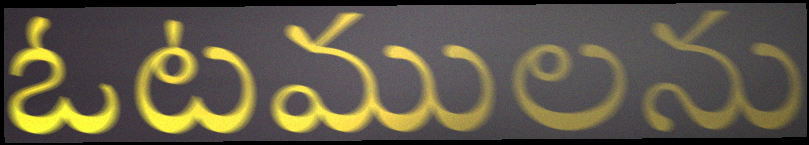
ఓటములను